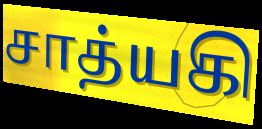
சாத்யகி